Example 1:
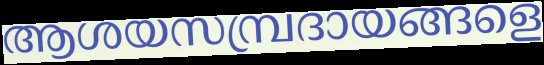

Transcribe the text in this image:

ആശയസമ്പ്രദായങ്ങളെ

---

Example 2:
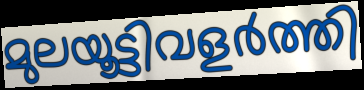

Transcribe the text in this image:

മുലയൂട്ടിവളർത്തി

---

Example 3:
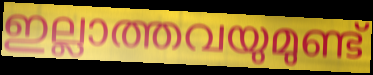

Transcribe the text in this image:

ഇല്ലാത്തവയുമുണ്ട്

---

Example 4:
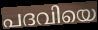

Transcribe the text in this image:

പദവിയെ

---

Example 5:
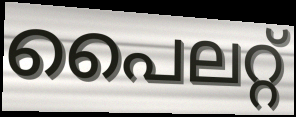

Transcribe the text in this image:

പൈലറ്റ്